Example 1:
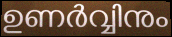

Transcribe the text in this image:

ഉണർവ്വിനും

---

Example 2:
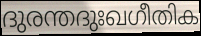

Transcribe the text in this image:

ദുരന്തദുഃഖഗീതിക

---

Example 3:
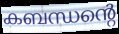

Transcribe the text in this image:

കബന്ധന്റെ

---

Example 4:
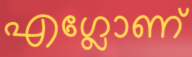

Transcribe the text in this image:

എഗ്ലോണ്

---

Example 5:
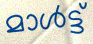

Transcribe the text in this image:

മാൾട്ട്